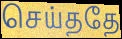
செய்ததே